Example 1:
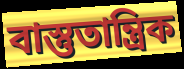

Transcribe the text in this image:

বাস্তুতান্ত্রিক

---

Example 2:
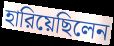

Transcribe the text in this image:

হারিয়েছিলেন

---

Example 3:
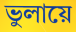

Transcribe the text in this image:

ভুলায়ে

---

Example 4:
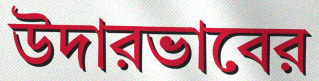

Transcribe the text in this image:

উদারভাবের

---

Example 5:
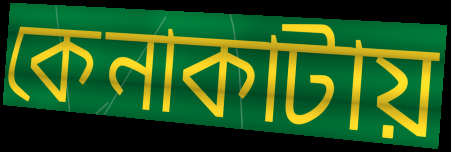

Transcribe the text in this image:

কেনাকাটায়